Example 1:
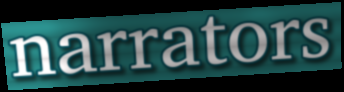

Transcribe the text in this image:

narrators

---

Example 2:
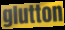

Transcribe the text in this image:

glutton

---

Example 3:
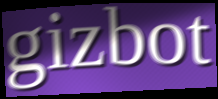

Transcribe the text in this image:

gizbot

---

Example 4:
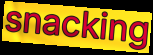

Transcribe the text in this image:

snacking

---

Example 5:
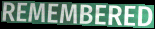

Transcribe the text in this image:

REMEMBERED